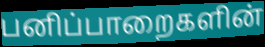
பனிப்பாறைகளின்